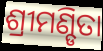
ଶ୍ରୀମଣ୍ଡିତା